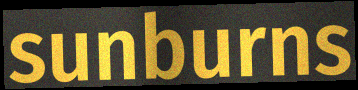
sunburns